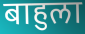
बाहुला